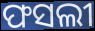
ଫସଲୀ